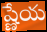
ష్ణేయ